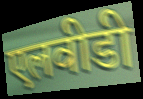
एलवीडी